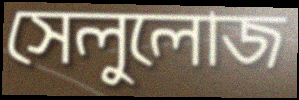
সেলুলোজ